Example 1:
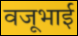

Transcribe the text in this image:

वजूभाई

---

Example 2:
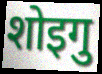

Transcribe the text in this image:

शोइगु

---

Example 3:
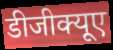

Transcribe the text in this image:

डीजीक्यूए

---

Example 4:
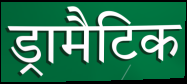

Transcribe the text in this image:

ड्रामैटिक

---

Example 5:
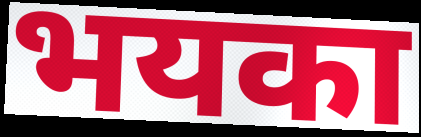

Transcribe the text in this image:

भयका